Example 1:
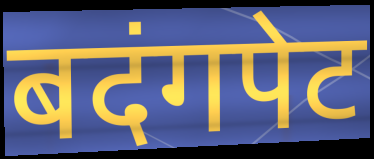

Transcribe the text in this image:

बदंगपेट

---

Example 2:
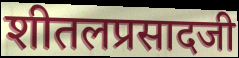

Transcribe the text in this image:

शीतलप्रसादजी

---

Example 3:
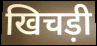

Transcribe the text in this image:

खिचड़ी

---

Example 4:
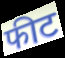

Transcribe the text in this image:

फीट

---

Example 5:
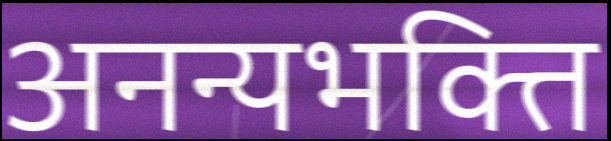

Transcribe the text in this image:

अनन्यभक्ति